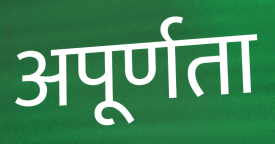
अपूर्णता